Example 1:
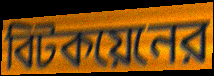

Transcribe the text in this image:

বিটকয়েনের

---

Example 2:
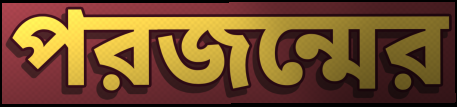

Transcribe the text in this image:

পরজন্মের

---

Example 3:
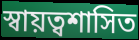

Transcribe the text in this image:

স্বায়ত্বশাসিত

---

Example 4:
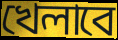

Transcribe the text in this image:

খেলাবে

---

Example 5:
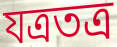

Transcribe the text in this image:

যত্রতত্র